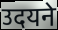
उदयने